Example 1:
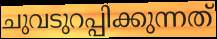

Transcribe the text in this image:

ചുവടുറപ്പിക്കുന്നത്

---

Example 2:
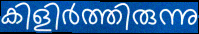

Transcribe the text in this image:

കിളിർത്തിരുന്നു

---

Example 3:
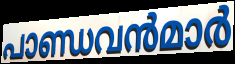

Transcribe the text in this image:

പാണ്ഡവൻമാർ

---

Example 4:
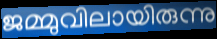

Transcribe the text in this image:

ജമ്മുവിലായിരുന്നു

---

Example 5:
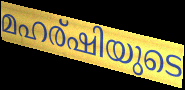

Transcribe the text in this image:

മഹര്ഷിയുടെ